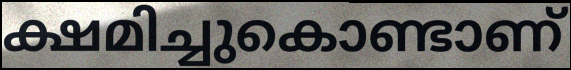
ക്ഷമിച്ചുകൊണ്ടാണ്